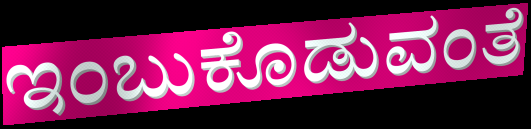
ಇಂಬುಕೊಡುವಂತೆ